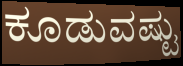
ಕೂಡುವಷ್ಟು